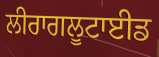
ਲੀਰਾਗਲੂਟਾਈਡ